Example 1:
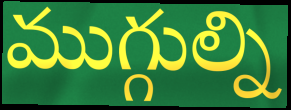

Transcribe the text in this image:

ముగ్గుల్ని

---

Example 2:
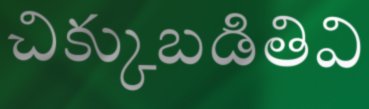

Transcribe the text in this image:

చిక్కుబడితివి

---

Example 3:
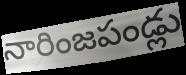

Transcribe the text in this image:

నారింజపండ్లు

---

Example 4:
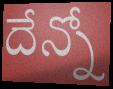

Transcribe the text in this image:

దేన్నో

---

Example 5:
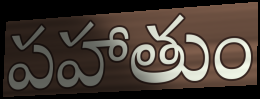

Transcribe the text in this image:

పహాతుం